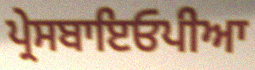
ਪ੍ਰੇਸਬਾਇਓਪੀਆ